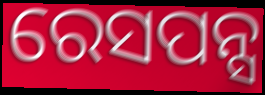
ରେସପନ୍ସ